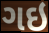
ગઇ